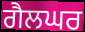
ਗੈਲਘਰ